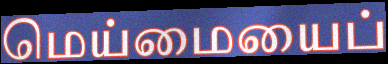
மெய்மையைப்